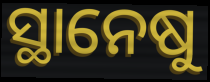
ସ୍ଥାନେଷୁ